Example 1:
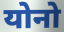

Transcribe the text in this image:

योनो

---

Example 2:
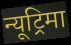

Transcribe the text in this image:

न्यूट्रिमा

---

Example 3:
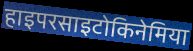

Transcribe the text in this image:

हाइपरसाइटोकिनेमिया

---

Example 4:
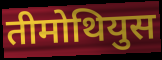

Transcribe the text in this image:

तीमोथियुस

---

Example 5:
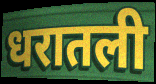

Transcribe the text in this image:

धरातली